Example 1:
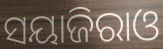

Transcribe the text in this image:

ସୟାଜିରାଓ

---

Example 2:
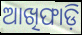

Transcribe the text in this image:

ଆଖିଫାଡ଼ି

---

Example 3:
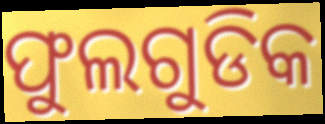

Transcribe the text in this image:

ଫୁଲଗୁଡିକ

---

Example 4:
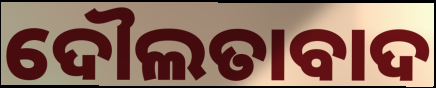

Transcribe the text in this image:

ଦୌଲତାବାଦ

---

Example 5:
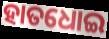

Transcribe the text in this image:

ହାତଧୋଇ